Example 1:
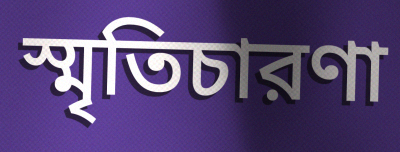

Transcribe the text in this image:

স্মৃতিচারণা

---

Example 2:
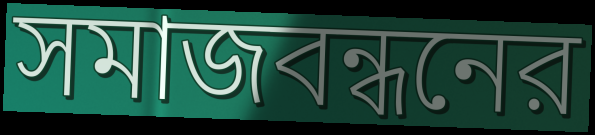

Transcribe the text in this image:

সমাজবন্ধনের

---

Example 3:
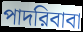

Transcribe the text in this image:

পাদরিবাবা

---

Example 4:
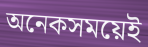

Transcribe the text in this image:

অনেকসময়েই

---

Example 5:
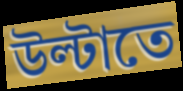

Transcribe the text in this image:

উল্টাতে